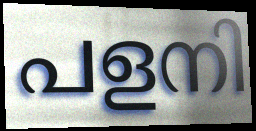
പളനി